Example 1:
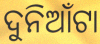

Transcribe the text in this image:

ଦୁନିଆଁଟା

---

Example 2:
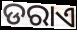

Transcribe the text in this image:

ଡରାଏ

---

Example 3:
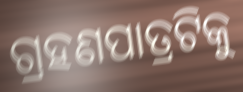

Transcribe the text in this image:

ଗ୍ରହଣପାତ୍ରଟିକୁ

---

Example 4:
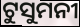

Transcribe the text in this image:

ଟୁସୁମନୀ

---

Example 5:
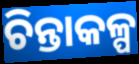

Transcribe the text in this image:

ଚିନ୍ତାକଳ୍ପ